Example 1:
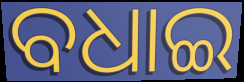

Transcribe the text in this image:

ବଧାଇ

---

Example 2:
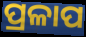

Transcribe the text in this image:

ପ୍ରଳାପ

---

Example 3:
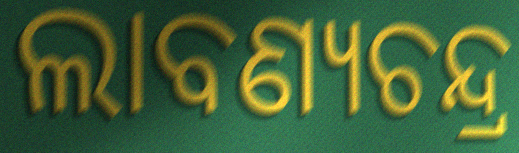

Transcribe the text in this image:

ଲାବଣ୍ୟଚନ୍ଦ୍ର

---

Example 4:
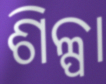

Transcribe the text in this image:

ଶିଳ୍ପା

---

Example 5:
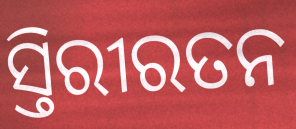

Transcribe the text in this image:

ସ୍ତିରୀରତନ